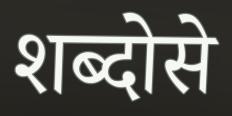
शब्दोसे